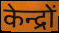
केन्द्रों